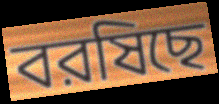
বরষিছে